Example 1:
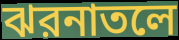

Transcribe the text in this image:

ঝরনাতলে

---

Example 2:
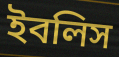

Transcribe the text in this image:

ইবলিস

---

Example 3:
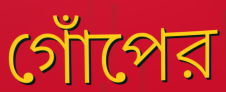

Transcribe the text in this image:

গোঁপের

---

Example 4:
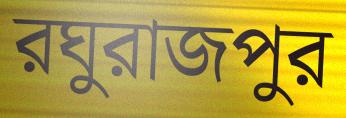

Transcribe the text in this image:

রঘুরাজপুর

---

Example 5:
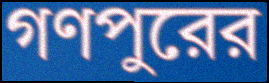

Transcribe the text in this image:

গণপুরের